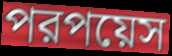
পরপয়েস